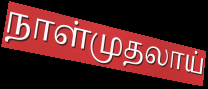
நாள்முதலாய்